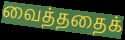
வைத்ததைக்